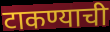
टाकण्याची